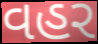
વહર